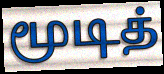
மூடித்